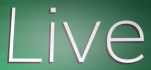
Live